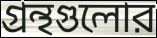
গ্রন্থগুলোর